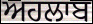
ਅਹਲਾਬ